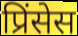
प्रिंसेस